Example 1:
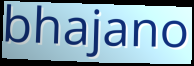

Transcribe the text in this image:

bhajano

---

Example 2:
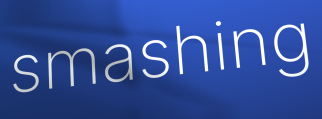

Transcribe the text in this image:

smashing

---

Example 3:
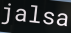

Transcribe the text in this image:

jalsa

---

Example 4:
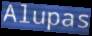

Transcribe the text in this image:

Alupas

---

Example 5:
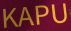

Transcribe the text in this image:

KAPU